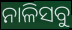
ନାଳିସବୁ